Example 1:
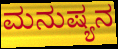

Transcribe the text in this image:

ಮನುಷ್ಯನ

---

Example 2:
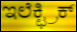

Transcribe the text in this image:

ಇಲೆಕ್ಟ್ರಿಕ್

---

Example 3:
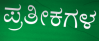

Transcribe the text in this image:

ಪ್ರತೀಕಗಳ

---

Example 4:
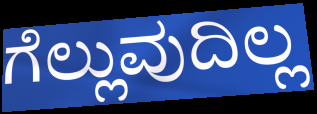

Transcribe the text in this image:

ಗೆಲ್ಲುವುದಿಲ್ಲ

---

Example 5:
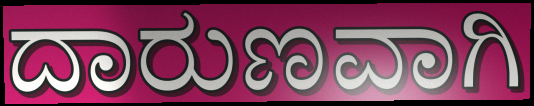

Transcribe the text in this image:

ದಾರುಣವಾಗಿ